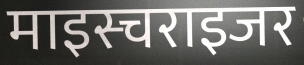
माइस्चराइजर